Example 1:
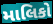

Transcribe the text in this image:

માલિકો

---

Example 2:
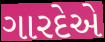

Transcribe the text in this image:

ગારદેએ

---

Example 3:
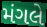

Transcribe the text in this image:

મંગલે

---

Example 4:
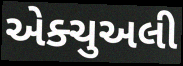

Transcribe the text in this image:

એક્ચુઅલી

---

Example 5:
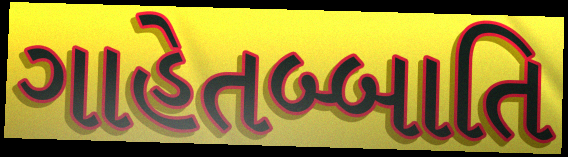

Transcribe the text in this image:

ગાહેતબ્બાતિ